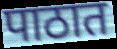
पाठात